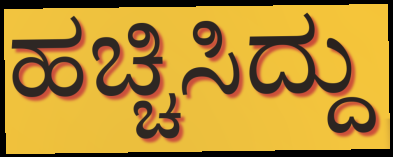
ಹಚ್ಚಿಸಿದ್ದು